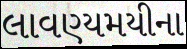
લાવણ્યમયીના